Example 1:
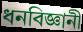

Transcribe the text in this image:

ধনবিজ্ঞানী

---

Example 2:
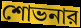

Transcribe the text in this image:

শোভনার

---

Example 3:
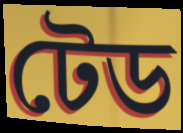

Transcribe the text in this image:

টেড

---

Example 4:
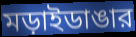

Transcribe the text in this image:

মড়াইডাঙার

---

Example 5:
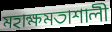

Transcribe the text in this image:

মহাক্ষমতাশালী